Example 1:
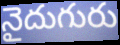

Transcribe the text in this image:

నైదుగురు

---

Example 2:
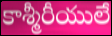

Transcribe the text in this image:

కాశ్మీరీయులే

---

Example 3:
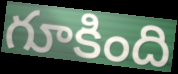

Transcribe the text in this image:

గూకింది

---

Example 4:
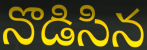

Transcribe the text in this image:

నొడిసిన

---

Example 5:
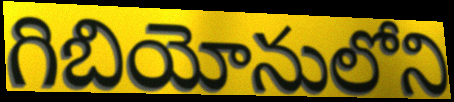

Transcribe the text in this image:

గిబియోనులోని